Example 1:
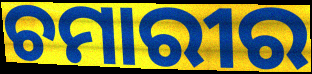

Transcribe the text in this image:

ଚମାରୀର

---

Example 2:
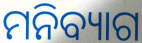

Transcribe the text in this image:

ମନିବ୍ୟାଗ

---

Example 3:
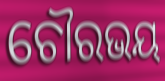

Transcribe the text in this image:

ଚୌରଭୟ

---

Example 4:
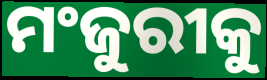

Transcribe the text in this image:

ମଂଜୁରୀକୁ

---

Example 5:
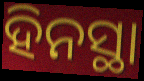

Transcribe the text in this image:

ହିନସ୍ଥା